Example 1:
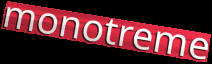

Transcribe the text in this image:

monotreme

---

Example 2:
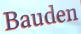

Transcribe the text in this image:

Bauden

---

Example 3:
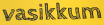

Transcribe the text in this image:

vasikkum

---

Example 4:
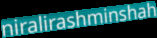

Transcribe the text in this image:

niralirashminshah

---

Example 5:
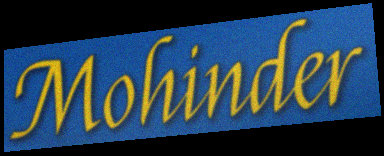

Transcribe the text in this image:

Mohinder